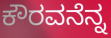
ಕೌರವನೆನ್ನ